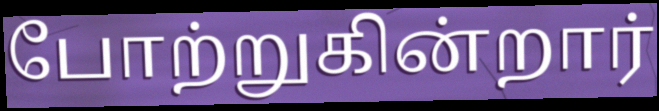
போற்றுகின்றார்